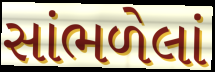
સાંભળેલાં